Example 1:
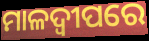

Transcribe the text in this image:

ମାଳଦ୍ବୀପରେ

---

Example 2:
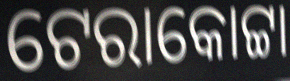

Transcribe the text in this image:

ଟେରାକୋଟ୍ଟା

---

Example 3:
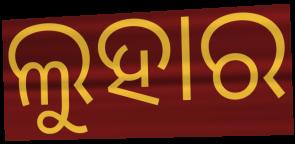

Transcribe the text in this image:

ଲୁହାର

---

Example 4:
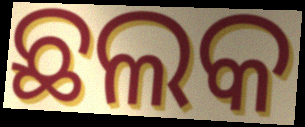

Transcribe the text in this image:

ଛଲକ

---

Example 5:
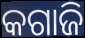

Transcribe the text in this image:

କଗାଜି